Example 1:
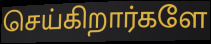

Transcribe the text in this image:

செய்கிறார்களே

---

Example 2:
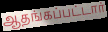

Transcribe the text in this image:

ஆதங்கப்பட்டார்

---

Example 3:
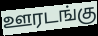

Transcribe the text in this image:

ஊரடங்கு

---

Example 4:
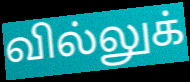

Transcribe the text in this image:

வில்லுக்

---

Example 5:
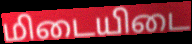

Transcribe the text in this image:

மிடையிடை